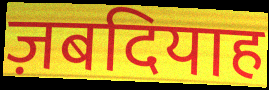
ज़बदियाह